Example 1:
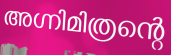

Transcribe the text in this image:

അഗ്നിമിത്രന്റെ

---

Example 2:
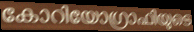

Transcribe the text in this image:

കോറിയോഗ്രാഫിയുടെ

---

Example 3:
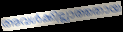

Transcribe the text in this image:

അവൾക്കില്ലാത്തതായ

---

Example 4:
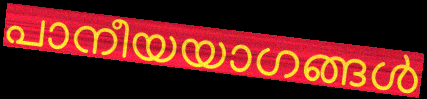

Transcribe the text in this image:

പാനീയയാഗങ്ങൾ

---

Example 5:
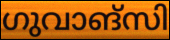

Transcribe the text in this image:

ഗുവാങ്സി